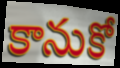
కానుకో